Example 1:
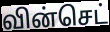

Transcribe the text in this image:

வின்செட்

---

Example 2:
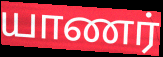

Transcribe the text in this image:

யாணர்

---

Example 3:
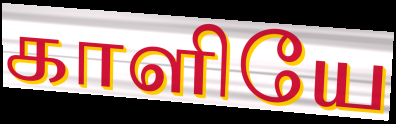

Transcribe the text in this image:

காளியே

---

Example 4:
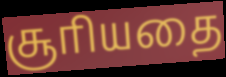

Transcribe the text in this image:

சூரியதை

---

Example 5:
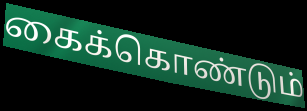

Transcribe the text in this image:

கைக்கொண்டும்